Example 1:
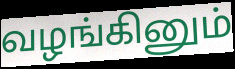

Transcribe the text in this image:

வழங்கினும்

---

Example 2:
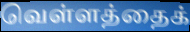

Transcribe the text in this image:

வெள்ளத்தைக்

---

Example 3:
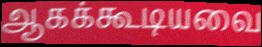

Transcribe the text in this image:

ஆகக்கூடியவை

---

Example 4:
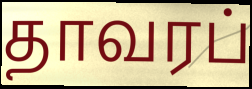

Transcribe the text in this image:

தாவரப்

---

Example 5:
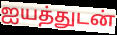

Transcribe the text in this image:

ஐயத்துடன்